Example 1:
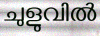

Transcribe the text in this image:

ചുളുവിൽ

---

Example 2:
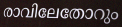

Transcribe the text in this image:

രാവിലേതോറും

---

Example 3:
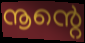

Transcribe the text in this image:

നൂന്റെ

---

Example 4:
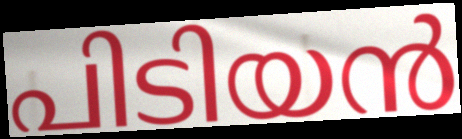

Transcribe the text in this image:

പിടിയൻ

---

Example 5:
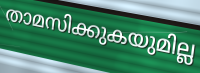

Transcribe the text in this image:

താമസിക്കുകയുമില്ല